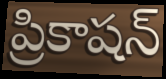
ప్రికాషన్